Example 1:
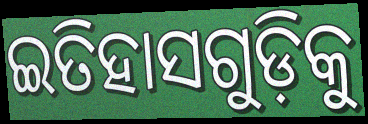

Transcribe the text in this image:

ଇତିହାସଗୁଡ଼ିକୁ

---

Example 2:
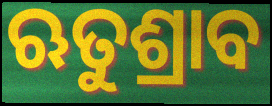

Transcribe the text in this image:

ଋତୁଶ୍ରାବ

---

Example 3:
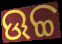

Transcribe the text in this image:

ଊଚ୍ଚ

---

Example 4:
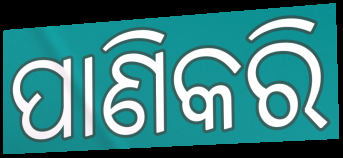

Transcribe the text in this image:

ପାଣିକରି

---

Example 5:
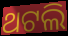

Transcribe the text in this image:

ଥଟଲି